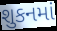
શુકનમાં